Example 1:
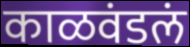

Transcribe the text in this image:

काळवंडलं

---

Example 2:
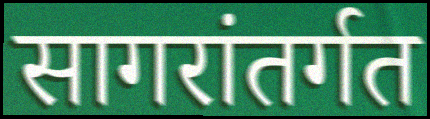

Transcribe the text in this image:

सागरांतर्गत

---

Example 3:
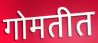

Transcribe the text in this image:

गोमतीत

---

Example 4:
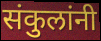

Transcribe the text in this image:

संकुलांनी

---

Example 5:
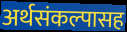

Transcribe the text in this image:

अर्थसंकल्पासह